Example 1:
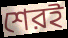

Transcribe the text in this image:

শেরই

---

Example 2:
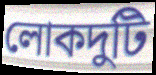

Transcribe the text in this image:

লোকদুটি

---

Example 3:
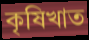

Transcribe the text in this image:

কৃষিখাত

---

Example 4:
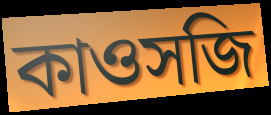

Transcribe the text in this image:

কাওসজি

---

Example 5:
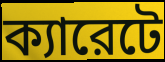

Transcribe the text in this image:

ক্যারেটে